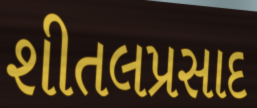
શીતલપ્રસાદ